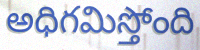
అధిగమిస్తోంది